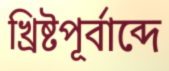
খ্রিষ্টপূর্বাব্দে